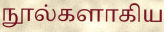
நூல்களாகிய